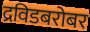
द्रविडबरोबर